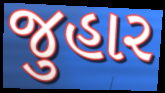
જુહાર